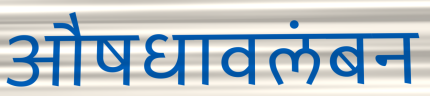
औषधावलंबन